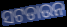
ସଟଡାଉନ